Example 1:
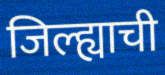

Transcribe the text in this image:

जिल्ह्याची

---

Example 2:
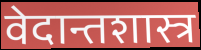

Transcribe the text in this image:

वेदान्तशास्त्र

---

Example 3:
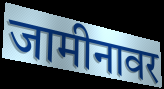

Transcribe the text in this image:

जामीनावर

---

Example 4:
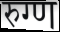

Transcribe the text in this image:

रुग्ण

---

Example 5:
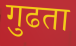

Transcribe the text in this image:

गुढता